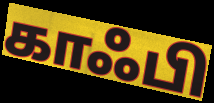
காஃபி